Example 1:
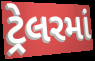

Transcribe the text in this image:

ટ્રેલરમાં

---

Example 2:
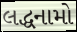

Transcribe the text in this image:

લદ્ધનામો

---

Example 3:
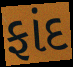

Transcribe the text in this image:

ફાંદ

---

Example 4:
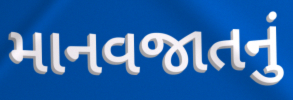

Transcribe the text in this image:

માનવજાતનું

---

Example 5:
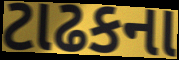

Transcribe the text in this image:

ટાઢકના